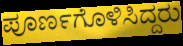
ಪೂರ್ಣಗೊಳಿಸಿದ್ದರು